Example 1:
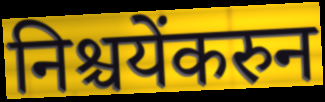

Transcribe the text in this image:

निश्चयेंकरुन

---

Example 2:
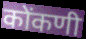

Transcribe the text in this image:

कोंकणी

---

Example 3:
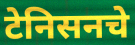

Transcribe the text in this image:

टेनिसनचे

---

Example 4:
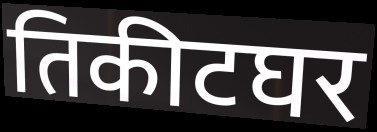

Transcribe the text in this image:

तिकीटघर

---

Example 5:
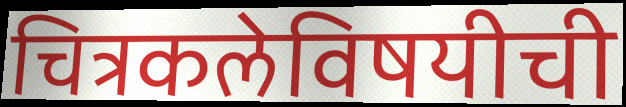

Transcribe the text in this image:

चित्रकलेविषयीची